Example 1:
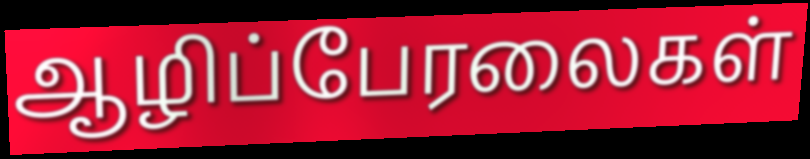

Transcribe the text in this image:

ஆழிப்பேரலைகள்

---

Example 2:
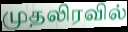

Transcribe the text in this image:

முதலிரவில்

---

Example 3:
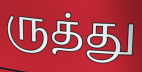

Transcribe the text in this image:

ருத்து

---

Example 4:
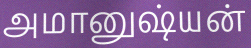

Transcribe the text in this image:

அமானுஷ்யன்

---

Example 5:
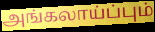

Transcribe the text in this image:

அங்கலாய்ப்பும்